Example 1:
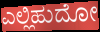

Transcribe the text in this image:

ಎಲ್ಲಿಹುದೋ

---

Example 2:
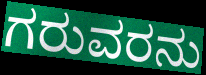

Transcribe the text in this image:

ಗರುವರನು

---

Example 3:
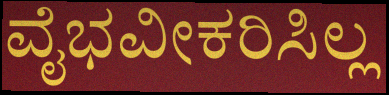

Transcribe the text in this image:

ವೈಭವೀಕರಿಸಿಲ್ಲ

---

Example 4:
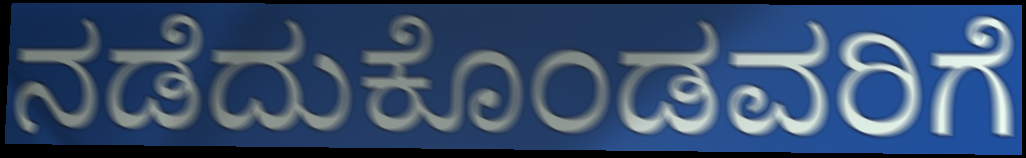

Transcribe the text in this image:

ನಡೆದುಕೊಂಡವರಿಗೆ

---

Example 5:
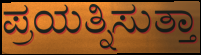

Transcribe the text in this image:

ಪ್ರಯತ್ನಿಸುತ್ತಾ